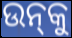
ଉନ୍‌କୁ